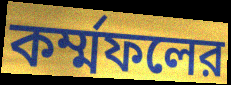
কর্ম্মফলের